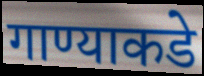
गाण्याकडे